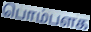
பொம்பளக